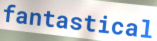
fantastical